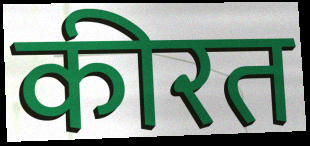
कीरत